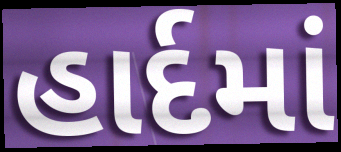
હાર્દમાં